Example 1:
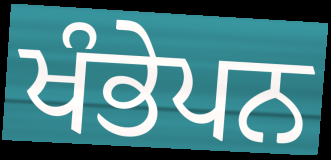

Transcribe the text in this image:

ਖੰਭੇਪਨ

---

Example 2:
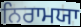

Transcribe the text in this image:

ਨਿਰਾਮਯਾ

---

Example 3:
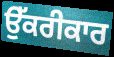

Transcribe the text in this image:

ਉੱਕਰੀਕਾਰ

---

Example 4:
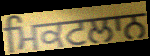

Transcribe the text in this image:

ਮਿਕਟਲਾਨ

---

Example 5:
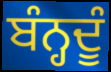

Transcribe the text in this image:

ਬੰਨ੍ਹਦੂੰ